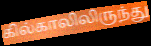
கில்காலிலிருந்து